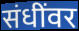
संधींवर